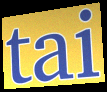
tai